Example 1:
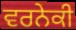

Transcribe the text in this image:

ਵਰਨੇਕੀ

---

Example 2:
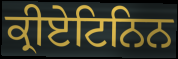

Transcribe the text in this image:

ਕ੍ਰੀਏਟਿਨਿਨ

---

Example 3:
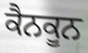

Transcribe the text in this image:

ਕੈਨਕੂਨ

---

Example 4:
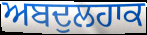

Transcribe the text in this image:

ਅਬਦੁਲਹਾਕ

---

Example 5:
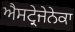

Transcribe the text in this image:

ਐਸਟ੍ਰੇਜੇਨੇਕਾ